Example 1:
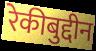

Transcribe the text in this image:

रेकीबुद्दीन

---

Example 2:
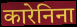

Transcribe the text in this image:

कारेनिना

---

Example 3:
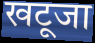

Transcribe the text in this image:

खटूजा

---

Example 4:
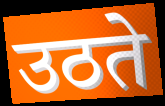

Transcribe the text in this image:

उठते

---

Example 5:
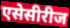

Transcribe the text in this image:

एसेसीरीज